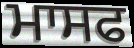
ਮਾਸਫ